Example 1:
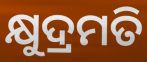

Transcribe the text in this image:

କ୍ଷୁଦ୍ରମତି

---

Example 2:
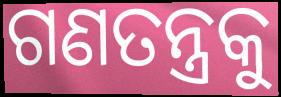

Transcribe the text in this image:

ଗଣତନ୍ତ୍ରକୁ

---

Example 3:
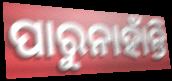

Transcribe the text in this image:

ପାରୁନାହାଁନ୍ତି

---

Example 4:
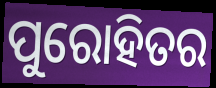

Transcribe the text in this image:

ପୁରୋହିତର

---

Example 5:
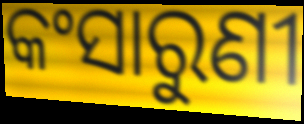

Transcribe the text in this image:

କଂସାରୁଣୀ